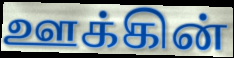
ஊக்கின்